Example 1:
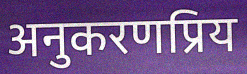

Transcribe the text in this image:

अनुकरणप्रिय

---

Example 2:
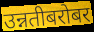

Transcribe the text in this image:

उन्नतीबरोबर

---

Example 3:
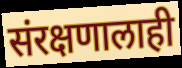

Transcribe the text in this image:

संरक्षणालाही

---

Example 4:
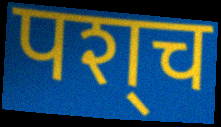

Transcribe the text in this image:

पश्च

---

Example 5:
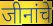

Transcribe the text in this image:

जीनांचे